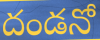
దండనో